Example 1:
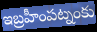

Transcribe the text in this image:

ఇబ్రహీంపట్నంకు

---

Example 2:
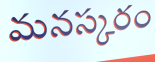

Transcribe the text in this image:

మనస్కరం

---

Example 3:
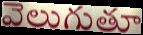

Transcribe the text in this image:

వెలుగుతూ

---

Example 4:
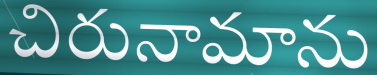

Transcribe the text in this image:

చిరునామాను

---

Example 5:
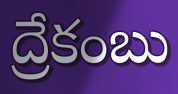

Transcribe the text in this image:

ద్రేకంబు